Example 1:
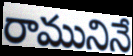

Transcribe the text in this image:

రామునినే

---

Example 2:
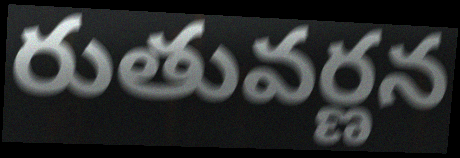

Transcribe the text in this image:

రుతువర్ణన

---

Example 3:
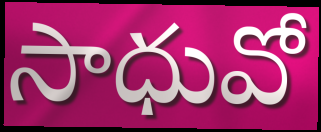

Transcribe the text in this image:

సాధువో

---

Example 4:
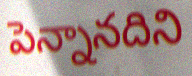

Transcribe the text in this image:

పెన్నానదిని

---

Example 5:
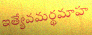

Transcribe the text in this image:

ఇత్యేవమర్థమాహ